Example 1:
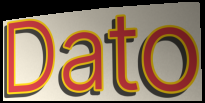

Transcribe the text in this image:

Dato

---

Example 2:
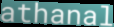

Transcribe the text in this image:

athanal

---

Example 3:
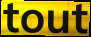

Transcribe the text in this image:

tout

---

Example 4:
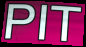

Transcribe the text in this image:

PIT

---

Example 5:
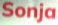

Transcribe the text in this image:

Sonja